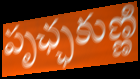
పృఛ్ఛకుణ్ణి